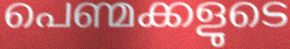
പെണ്മക്കളുടെ